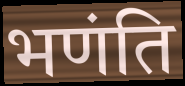
भणंति